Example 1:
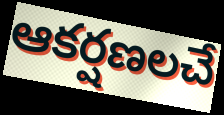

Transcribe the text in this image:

ఆకర్షణలచే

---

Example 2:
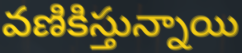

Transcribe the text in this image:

వణికిస్తున్నాయి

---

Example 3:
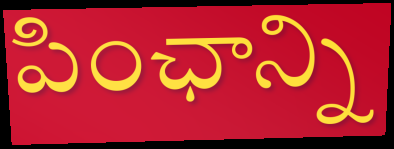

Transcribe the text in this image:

పింఛాన్ని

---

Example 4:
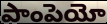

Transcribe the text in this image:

పాంపెయో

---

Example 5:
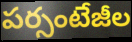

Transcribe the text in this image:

పర్సంటేజీల